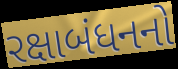
રક્ષાબંધનનો